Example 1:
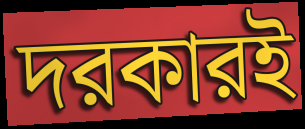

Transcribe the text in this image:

দরকারই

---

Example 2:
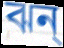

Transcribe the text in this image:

ঝন্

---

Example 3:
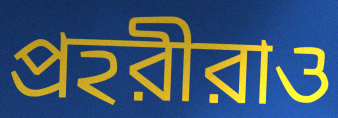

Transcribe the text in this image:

প্রহরীরাও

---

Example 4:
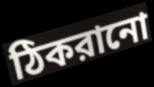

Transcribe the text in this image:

ঠিকরানো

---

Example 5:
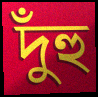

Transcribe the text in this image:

দুঁহু